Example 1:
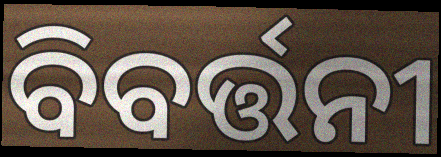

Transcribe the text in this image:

ବିବର୍ତ୍ତନୀ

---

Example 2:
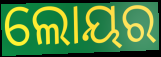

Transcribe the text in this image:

ଲୋୟର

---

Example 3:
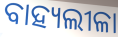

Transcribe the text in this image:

ବାହ୍ୟଲୀଳା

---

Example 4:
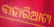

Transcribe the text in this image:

ବାହାରିଆଟା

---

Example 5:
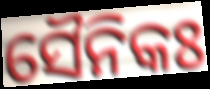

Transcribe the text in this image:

ସୈନିକଃ